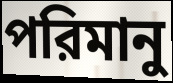
পরিমানু